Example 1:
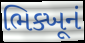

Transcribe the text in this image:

ભિક્ખૂનં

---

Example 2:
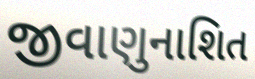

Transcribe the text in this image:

જીવાણુનાશિત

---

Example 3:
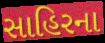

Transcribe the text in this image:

સાહિરના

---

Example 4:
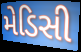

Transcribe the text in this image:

મેડિસી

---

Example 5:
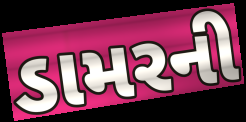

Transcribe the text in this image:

ડામરની